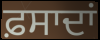
ਫ਼ਸਾਦਾਂ